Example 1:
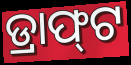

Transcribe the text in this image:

ଡ୍ରାଫ୍‍ଟ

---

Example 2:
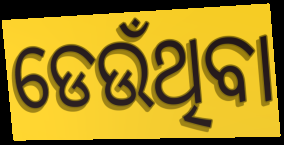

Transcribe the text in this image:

ଡେଉଁଥିବା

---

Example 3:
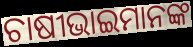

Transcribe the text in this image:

ଚାଷୀଭାଇମାନଙ୍କ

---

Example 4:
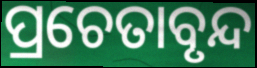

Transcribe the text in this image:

ପ୍ରଚେତାବୃନ୍ଦ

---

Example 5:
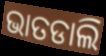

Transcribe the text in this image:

ଭାତଡାଲି